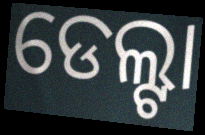
ଡେଲ୍ଟା